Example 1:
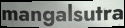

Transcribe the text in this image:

mangalsutra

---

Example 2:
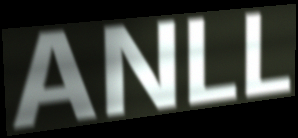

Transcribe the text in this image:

ANLL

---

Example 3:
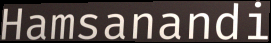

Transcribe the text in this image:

Hamsanandi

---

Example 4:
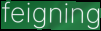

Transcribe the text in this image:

feigning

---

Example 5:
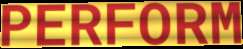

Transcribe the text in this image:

PERFORM